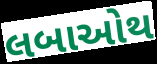
લબાઓથ